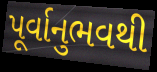
પૂર્વાનુભવથી